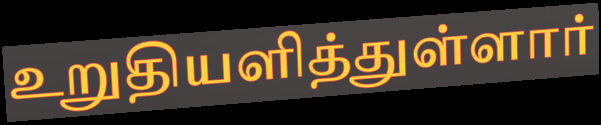
உறுதியளித்துள்ளார்